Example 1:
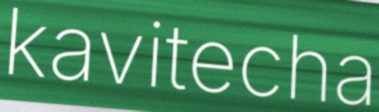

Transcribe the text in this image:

kavitecha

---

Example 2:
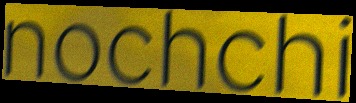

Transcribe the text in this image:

nochchi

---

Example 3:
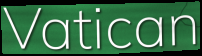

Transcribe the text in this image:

Vatican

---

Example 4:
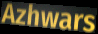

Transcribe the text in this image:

Azhwars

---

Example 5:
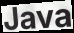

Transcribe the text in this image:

Java